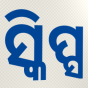
ସ୍କିପ୍ସ